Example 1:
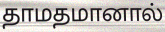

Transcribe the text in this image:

தாமதமானால்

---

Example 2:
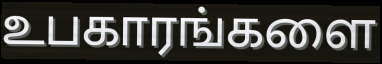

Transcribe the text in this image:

உபகாரங்களை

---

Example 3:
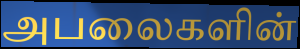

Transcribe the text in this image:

அபலைகளின்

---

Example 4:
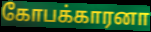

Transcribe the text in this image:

கோபக்காரனா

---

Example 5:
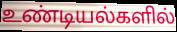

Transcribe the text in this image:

உண்டியல்களில்